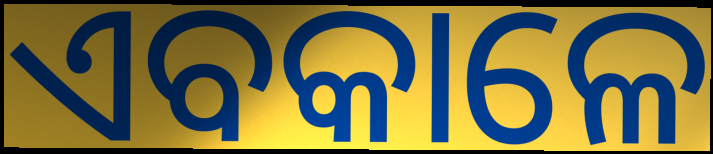
ଏବକାଳେ